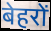
बेहरों